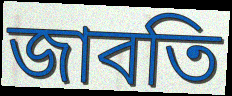
জাবতি